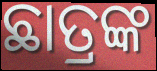
ଛାତ୍ରଙ୍କ